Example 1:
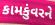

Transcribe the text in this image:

કામકુંવરને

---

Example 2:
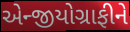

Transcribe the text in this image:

એન્જીયોગ્રાફીને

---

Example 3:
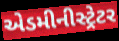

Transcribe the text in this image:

એડમીનીસ્ટ્રેટર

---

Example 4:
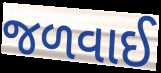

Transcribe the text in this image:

જળવાઈ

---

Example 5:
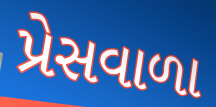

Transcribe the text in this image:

પ્રેસવાળા